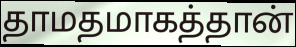
தாமதமாகத்தான்